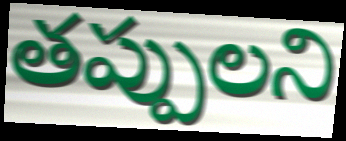
తప్పులని